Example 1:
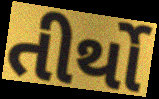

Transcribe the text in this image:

તીર્થો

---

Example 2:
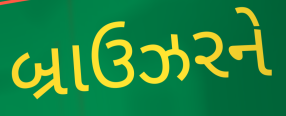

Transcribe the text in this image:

બ્રાઉઝરને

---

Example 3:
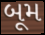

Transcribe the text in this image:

બૂમ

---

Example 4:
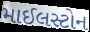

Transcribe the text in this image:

માઈલસ્ટોન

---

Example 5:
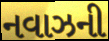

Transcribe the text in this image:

નવાઝની